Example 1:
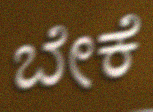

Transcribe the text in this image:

ಬೇಕೆ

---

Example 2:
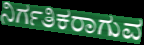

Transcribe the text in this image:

ನಿರ್ಗತಿಕರಾಗುವ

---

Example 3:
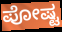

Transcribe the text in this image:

ಪೋಷ್ಟ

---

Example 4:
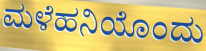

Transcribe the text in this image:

ಮಳೆಹನಿಯೊಂದು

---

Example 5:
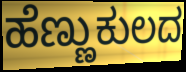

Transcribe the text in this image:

ಹೆಣ್ಣುಕುಲದ